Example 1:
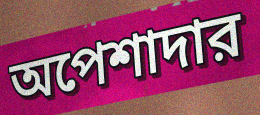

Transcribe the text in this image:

অপেশাদার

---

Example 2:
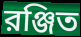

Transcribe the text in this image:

রঞ্জিত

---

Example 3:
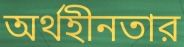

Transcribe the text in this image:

অর্থহীনতার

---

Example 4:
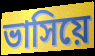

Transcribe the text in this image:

ভাসিয়ে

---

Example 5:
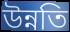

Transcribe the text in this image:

উন্নতি